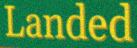
Landed